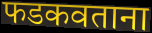
फडकवताना